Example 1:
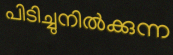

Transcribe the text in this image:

പിടിച്ചുനിൽക്കുന്ന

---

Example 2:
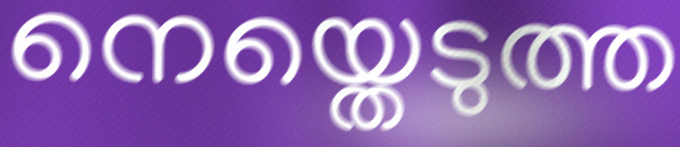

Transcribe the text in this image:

നെയ്തെടുത്ത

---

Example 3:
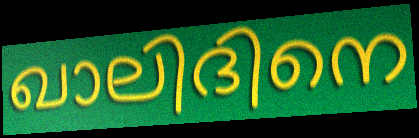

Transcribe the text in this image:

ഖാലിദിനെ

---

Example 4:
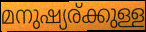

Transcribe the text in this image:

മനുഷ്യര്ക്കുള്ള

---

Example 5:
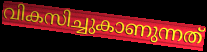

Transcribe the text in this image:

വികസിച്ചുകാണുന്നത്